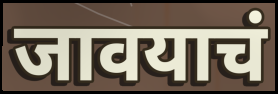
जावयाचं